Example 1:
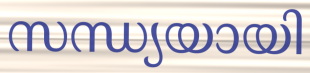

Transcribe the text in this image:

സന്ധ്യയായി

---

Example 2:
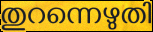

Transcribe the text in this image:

തുറന്നെഴുതി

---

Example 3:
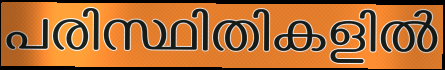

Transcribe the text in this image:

പരിസ്ഥിതികളിൽ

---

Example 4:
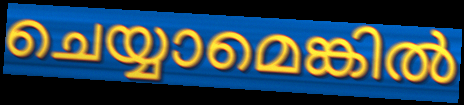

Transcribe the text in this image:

ചെയ്യാമെങ്കിൽ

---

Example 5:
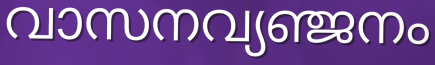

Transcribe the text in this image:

വാസനവ്യഞ്ജനം